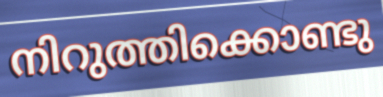
നിറുത്തിക്കൊണ്ടു